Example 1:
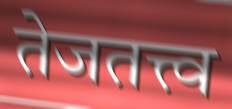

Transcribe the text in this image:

तेजतत्त्व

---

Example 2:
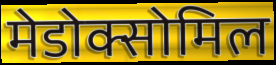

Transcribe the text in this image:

मेडोक्सोमिल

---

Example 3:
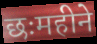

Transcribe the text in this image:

छःमहीने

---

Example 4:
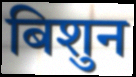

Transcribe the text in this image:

बिशुन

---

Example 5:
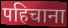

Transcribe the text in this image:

पहिचाना